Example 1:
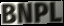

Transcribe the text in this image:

BNPL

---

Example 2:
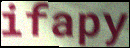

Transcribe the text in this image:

ifapy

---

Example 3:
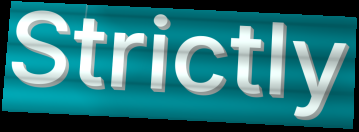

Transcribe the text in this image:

Strictly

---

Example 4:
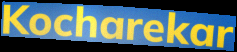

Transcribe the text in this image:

Kocharekar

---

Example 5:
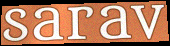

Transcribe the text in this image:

sarav